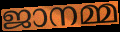
ജാനമ്മ